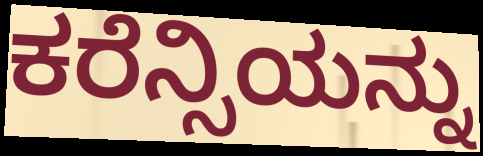
ಕರೆನ್ಸಿಯನ್ನು